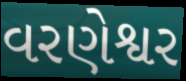
વરણેશ્વર